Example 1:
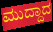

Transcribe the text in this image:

ಮುದ್ದಾದ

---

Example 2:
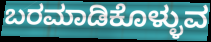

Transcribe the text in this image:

ಬರಮಾಡಿಕೊಳ್ಳುವ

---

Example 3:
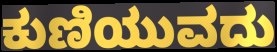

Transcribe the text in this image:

ಕುಣಿಯುವದು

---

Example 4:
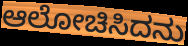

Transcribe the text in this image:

ಆಲೋಚಿಸಿದನು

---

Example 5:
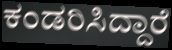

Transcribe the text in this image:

ಕಂಡರಿಸಿದ್ದಾರೆ